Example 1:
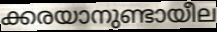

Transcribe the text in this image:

ക്കരയാനുണ്ടായീല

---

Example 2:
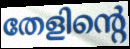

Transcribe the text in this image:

തേളിന്റെ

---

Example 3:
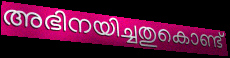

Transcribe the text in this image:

അഭിനയിച്ചതുകൊണ്ട്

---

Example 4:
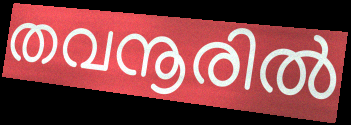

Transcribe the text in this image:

തവനൂരിൽ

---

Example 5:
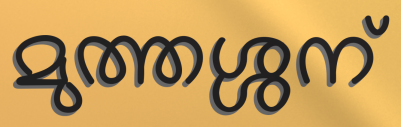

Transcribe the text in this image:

മുത്തശ്ശന്